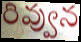
రివ్వున